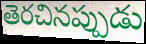
తెరచినప్పుడు